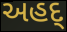
અહદ્